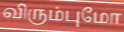
விரும்புமோ